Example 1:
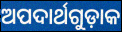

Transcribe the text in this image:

ଅପଦାର୍ଥଗୁଡ଼ାକ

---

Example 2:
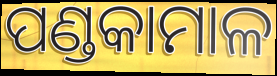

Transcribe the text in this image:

ପଣ୍ଡକାମାଳ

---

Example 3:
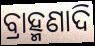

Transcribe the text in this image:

ବ୍ରାହ୍ମଣାଦି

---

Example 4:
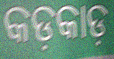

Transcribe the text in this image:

କଡ଼କାଡ଼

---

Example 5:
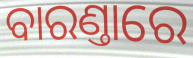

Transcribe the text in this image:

ବାରଣ୍ତାରେ